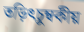
তড়িৎচুম্বকীয়